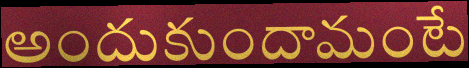
అందుకుందామంటే